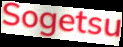
Sogetsu